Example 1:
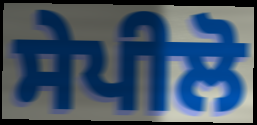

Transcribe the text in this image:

ਸੇਪੀਲੋ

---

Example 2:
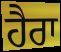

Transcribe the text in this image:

ਹੈਰਾ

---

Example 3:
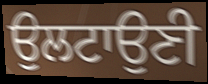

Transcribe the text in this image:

ਉਲਟਾਉਣੀ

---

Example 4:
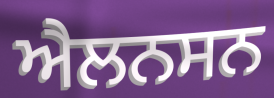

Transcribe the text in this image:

ਐਲਨਸਨ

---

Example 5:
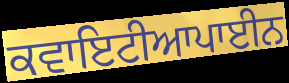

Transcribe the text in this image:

ਕਵਾਇਟੀਆਪਾਈਨ